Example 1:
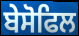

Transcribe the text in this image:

ਬੇਸੋਫਿਲ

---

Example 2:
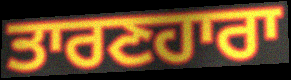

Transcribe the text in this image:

ਤਾਰਣਹਾਰਾ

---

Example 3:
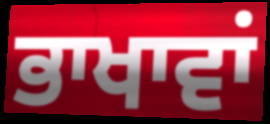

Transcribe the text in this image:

ਭਾਖਾਵਾਂ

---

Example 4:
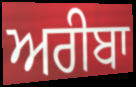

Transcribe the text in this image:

ਅਰੀਬਾ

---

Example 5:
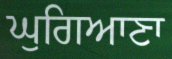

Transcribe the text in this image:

ਘੁਗਿਆਣਾ